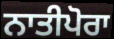
ਨਾਤੀਪੋਰਾ